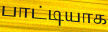
பாட்டியாக